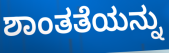
ಶಾಂತತೆಯನ್ನು